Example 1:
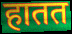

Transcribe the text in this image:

हातत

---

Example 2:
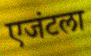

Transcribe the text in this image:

एजंटला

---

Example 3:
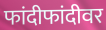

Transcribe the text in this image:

फांदीफांदीवर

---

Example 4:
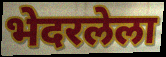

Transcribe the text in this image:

भेदरलेला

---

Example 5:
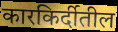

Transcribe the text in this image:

कारकिर्दीतील